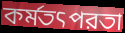
কর্মতৎপরতা